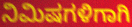
ನಿಮಿಷಗಳಿಗಾಗಿ